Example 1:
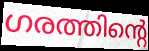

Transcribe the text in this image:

ഗരത്തിന്റെ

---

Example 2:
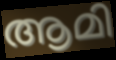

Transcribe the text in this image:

ആമി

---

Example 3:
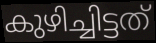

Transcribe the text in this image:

കുഴിച്ചിട്ടത്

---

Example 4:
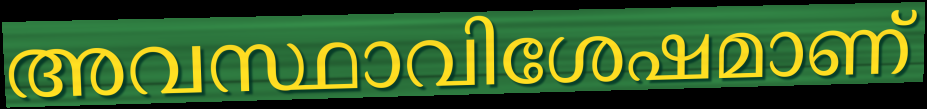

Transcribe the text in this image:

അവസ്ഥാവിശേഷമാണ്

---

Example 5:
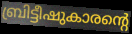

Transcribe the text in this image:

ബ്രിട്ടീഷുകാരന്റെ